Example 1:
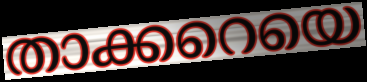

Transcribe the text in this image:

താക്കറെയെ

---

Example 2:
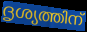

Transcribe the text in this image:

ദൃശ്യത്തിന്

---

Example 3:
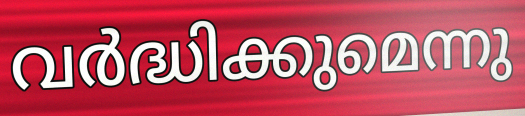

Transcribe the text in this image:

വർദ്ധിക്കുമെന്നു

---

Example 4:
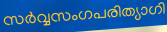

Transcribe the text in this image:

സർവ്വസംഗപരിത്യാഗി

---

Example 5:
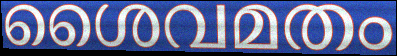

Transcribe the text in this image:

ശൈവമതം